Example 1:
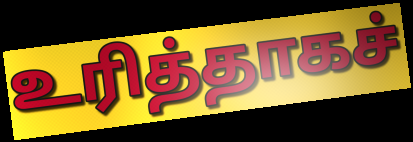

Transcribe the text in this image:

உரித்தாகச்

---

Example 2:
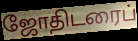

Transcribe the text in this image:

ஜோதிடரைப்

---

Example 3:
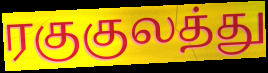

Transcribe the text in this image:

ரகுகுலத்து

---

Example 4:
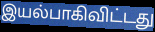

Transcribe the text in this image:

இயல்பாகிவிட்டது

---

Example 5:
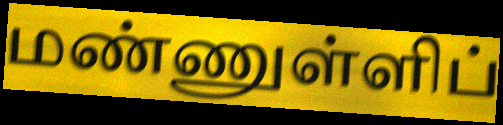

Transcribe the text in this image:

மண்ணுள்ளிப்